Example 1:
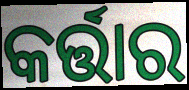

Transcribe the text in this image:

କର୍ତ୍ତାର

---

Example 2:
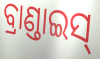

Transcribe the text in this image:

ବ୍ରାଣ୍ଡାଇସ୍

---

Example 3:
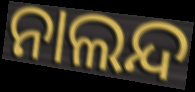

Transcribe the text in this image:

ନାଲନ୍ଦ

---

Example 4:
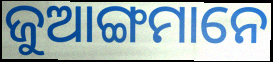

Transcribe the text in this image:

ଜୁଆଙ୍ଗମାନେ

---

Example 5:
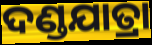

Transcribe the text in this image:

ଦଣ୍ଡଯାତ୍ରା